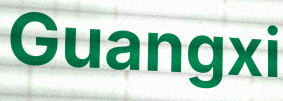
Guangxi